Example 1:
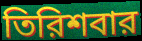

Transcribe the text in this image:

তিরিশবার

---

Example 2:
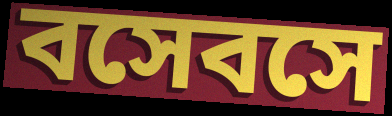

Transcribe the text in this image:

বসেবসে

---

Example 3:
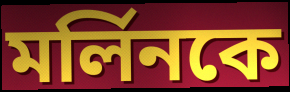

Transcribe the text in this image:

মর্লিনকে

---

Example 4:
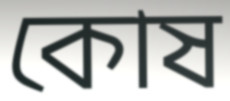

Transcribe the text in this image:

কোষ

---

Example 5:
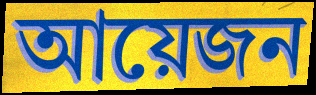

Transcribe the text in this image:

আয়েজন